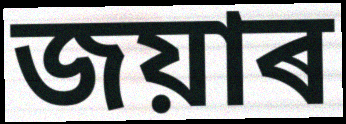
জয়াৰ